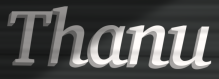
Thanu